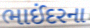
ભાઈંદરના